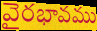
వైరభావము